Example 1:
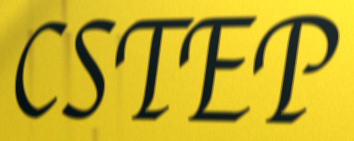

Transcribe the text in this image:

CSTEP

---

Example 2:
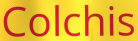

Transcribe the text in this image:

Colchis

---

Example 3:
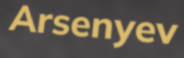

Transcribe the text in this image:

Arsenyev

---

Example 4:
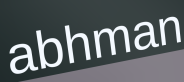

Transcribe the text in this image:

abhman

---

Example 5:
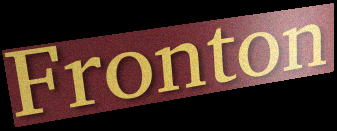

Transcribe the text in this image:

Fronton